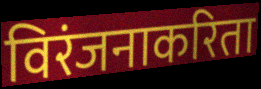
विरंजनाकरिता